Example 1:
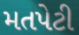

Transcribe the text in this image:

મતપેટી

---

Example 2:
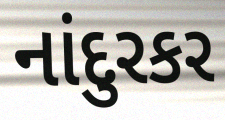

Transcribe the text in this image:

નાંદુરકર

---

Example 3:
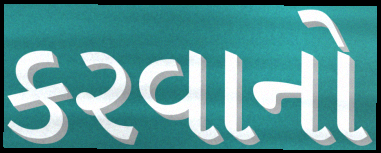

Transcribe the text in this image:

કરવાનો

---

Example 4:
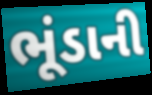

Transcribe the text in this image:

ભૂંડાની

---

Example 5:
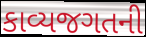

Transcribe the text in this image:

કાવ્યજગતની